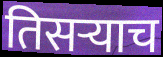
तिसऱ्याच